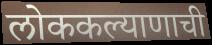
लोककल्याणाची